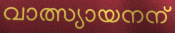
വാത്സ്യായനന്